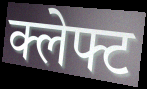
क्लेफ्ट